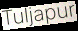
Tuljapur